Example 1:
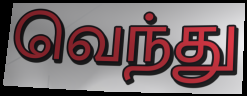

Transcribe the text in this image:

வெந்து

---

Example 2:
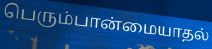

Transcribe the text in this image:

பெரும்பான்மையாதல்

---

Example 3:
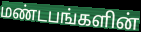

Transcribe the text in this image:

மண்டபங்களின்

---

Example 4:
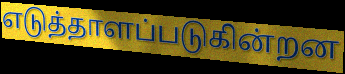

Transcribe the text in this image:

எடுத்தாளப்படுகின்றன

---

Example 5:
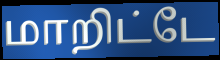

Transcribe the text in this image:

மாறிட்டே